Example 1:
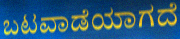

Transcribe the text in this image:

ಬಟವಾಡೆಯಾಗದೆ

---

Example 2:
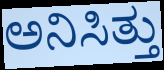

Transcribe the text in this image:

ಅನಿಸಿತ್ತು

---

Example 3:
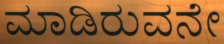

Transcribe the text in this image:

ಮಾಡಿರುವನೇ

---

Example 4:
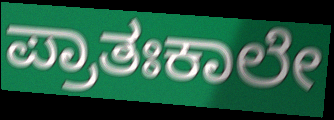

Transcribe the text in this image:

ಪ್ರಾತಃಕಾಲೇ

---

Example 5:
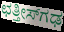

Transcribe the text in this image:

ಛತ್ತೀಸ್‌ಗಢ